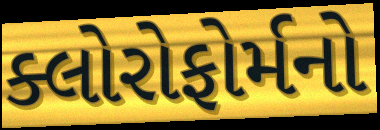
ક્લોરોફોર્મનો